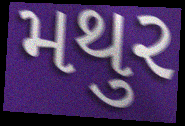
મથુર